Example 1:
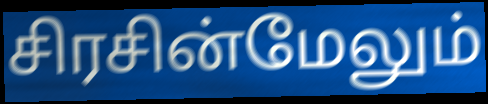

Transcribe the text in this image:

சிரசின்மேலும்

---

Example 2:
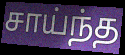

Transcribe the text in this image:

சாய்ந்த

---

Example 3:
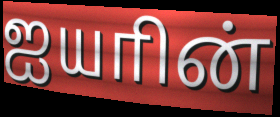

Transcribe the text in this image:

ஐயரின்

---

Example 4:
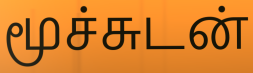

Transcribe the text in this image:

மூச்சுடன்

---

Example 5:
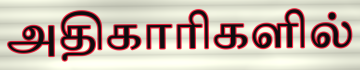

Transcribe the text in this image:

அதிகாரிகளில்